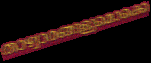
താഴ്വാരങ്ങളുമൊക്കെ